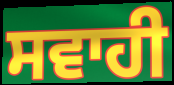
ਸਵਾਹੀ